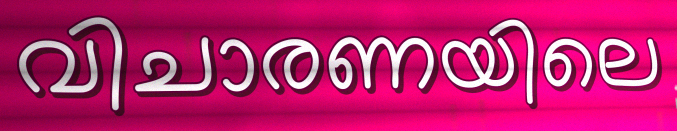
വിചാരണയിലെ